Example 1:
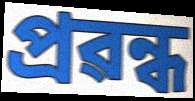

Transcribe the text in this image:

প্ৰৱন্ধ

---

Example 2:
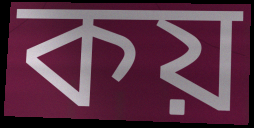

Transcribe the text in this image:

কয়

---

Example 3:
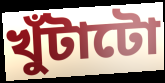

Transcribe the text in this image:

খুঁটাটো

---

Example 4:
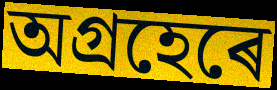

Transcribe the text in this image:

অগ্ৰহেৰে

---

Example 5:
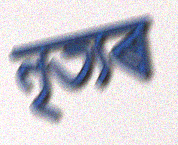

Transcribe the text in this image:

নৃত্যৰ